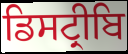
ਡਿਸਟ੍ਰੀਬਿ